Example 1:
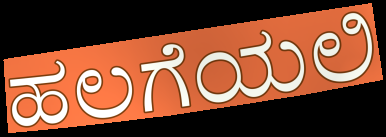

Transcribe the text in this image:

ಹಲಗೆಯಲಿ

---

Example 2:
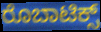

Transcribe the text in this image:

ರೊಬಾಟಿಕ್ಸ್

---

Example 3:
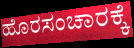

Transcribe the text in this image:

ಹೊರಸಂಚಾರಕ್ಕೆ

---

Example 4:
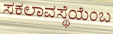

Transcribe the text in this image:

ಸಕಲಾವಸ್ಥೆಯೆಂಬ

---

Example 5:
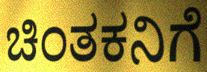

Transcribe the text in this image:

ಚಿಂತಕನಿಗೆ